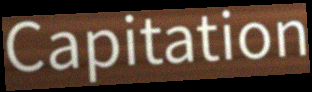
Capitation